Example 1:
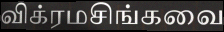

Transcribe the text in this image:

விக்ரமசிங்கவை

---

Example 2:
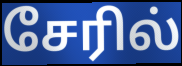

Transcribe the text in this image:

சேரில்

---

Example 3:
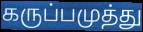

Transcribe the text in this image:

கருப்பமுத்து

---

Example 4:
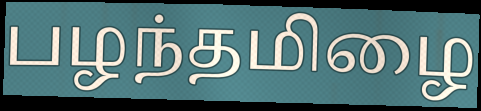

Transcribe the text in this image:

பழந்தமிழை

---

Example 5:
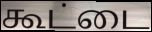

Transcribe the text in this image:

கூட்டை